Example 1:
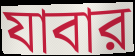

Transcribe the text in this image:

যাবার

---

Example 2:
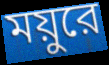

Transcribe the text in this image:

ময়ুরে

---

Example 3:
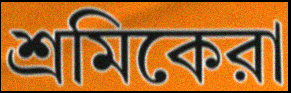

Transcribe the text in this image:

শ্রমিকেরা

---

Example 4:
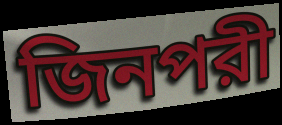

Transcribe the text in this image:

জিনপরী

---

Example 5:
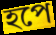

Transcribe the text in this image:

হপে